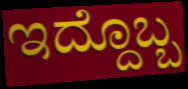
ಇದ್ದೊಬ್ಬ